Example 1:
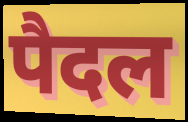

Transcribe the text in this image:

पैदल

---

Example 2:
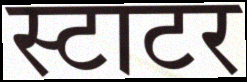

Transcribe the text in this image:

स्टाटर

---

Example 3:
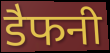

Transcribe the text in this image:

डैफनी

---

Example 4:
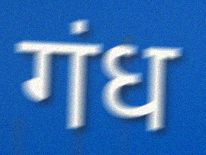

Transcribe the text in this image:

गंध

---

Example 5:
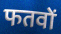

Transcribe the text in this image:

फतवों